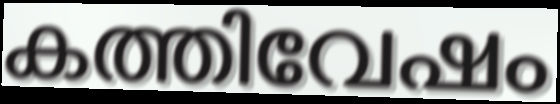
കത്തിവേഷം